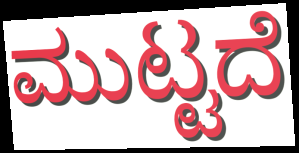
ಮುಟ್ಟದೆ